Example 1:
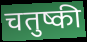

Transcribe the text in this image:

चतुष्की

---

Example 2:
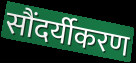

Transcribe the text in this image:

सौंदर्यीकरण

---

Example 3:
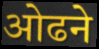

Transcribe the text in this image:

ओढने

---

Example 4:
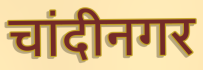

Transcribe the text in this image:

चांदीनगर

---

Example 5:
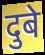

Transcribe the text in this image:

दुबे